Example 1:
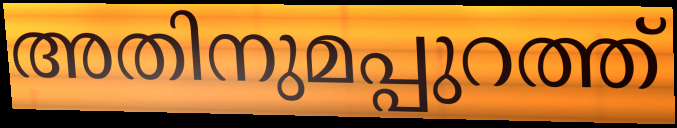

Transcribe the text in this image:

അതിനുമപ്പുറത്ത്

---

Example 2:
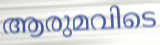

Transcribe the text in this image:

ആരുമവിടെ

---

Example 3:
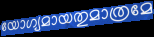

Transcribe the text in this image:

യോഗ്യമായതുമാത്രമേ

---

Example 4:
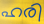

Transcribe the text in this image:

ഹരി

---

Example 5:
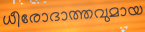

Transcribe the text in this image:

ധീരോദാത്തവുമായ